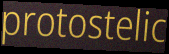
protostelic